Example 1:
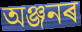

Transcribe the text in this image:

অঞ্জনৰ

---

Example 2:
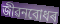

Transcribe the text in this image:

জীৱনবোধৰ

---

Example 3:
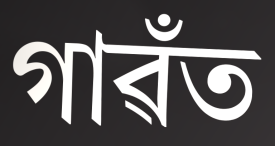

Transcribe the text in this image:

গাৱঁত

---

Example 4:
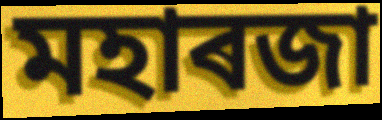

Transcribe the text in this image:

মহাৰজা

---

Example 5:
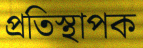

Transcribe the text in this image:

প্ৰতিস্থাপক